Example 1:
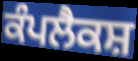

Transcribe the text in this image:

ਕੰਪਲੈਕਸ਼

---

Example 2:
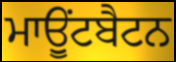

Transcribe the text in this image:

ਮਾਉੂਂਟਬੈਟਨ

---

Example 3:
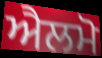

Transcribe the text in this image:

ਐਲਮੋ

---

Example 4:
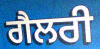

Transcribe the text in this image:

ਗੈਲਰੀ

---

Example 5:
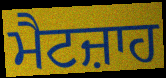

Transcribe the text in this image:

ਮੈਟਜ਼ਾਹ